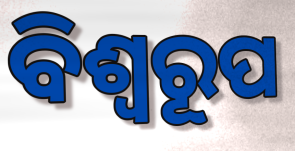
ବିଶ୍ଵରୂପ